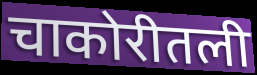
चाकोरीतली